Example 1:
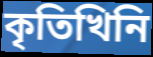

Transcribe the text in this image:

কৃতিখিনি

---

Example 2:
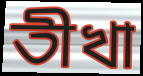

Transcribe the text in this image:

তীখা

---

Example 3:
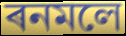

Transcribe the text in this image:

ৰনমলে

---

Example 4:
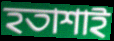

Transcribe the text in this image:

হতাশাই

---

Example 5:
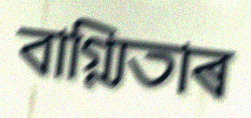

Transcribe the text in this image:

বাগ্মিতাৰ